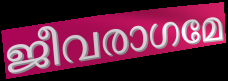
ജീവരാഗമേ